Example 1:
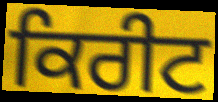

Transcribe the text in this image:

ਕਿਰੀਟ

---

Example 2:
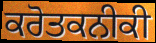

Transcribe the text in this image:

ਕਰੋਤਕਨੀਕੀ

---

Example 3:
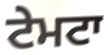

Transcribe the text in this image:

ਟੇਮਟਾ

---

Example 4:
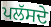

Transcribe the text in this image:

ਪਲੱਸਦੇ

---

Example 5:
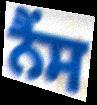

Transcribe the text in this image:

ਨੈਂਸ